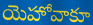
యెహోవాకూ